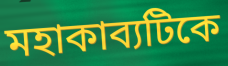
মহাকাব্যটিকে